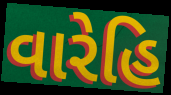
વારેહિ